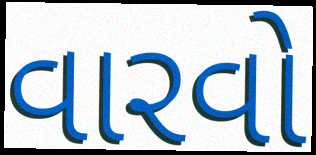
વારવો